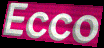
Ecco